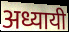
अध्यायी